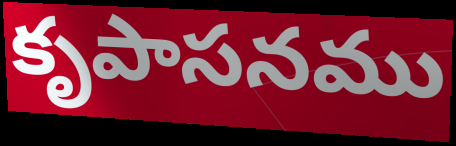
కృపాసనము